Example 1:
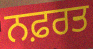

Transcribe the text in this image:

ਨਫ਼ਰਤ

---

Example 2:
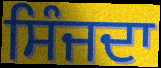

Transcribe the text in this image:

ਸਿੰਜਦਾ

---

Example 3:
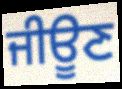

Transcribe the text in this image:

ਜੀਊਣ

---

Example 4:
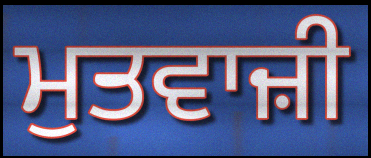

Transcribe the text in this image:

ਮੁਤਵਾਜ਼ੀ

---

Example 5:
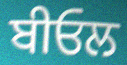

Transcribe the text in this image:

ਬੀਓਲ